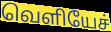
வெளியேச்